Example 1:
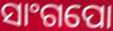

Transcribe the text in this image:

ସାଂଗପୋ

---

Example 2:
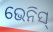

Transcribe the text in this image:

ଭେନିସ୍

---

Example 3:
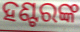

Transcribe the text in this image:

ହଣ୍ଟରଙ୍କ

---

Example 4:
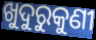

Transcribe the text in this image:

ଖୁଦୁରୁକୁଣୀ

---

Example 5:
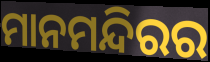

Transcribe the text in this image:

ମାନମନ୍ଦିରର